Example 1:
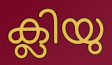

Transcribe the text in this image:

ക്ലിയു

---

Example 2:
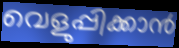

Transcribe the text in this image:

വെളുപ്പിക്കാൻ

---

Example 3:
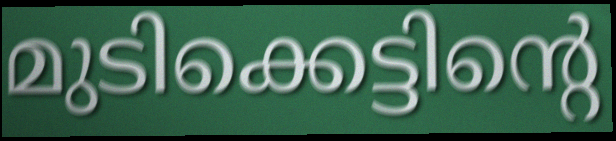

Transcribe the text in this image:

മുടിക്കെട്ടിന്റെ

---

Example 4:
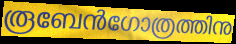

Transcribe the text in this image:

രൂബേൻഗോത്രത്തിനു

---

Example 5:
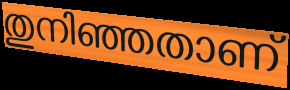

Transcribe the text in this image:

തുനിഞ്ഞതാണ്